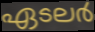
ഏടലർ